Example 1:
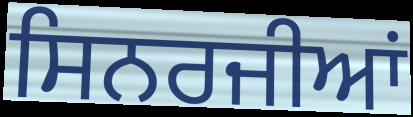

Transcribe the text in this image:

ਸਿਨਰਜੀਆਂ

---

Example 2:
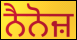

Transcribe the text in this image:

ਨੈਨੋਜ਼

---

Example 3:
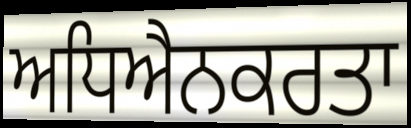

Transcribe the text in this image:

ਅਧਿਐਨਕਰਤਾ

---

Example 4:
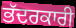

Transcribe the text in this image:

ਭੱਦਰਕਾਰੀ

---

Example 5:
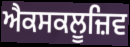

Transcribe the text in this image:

ਐਕਸਕਲੂਜ਼ਿਵ